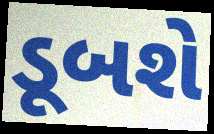
ડૂબશે